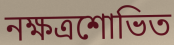
নক্ষত্রশোভিত